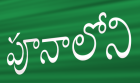
పూనాలోని